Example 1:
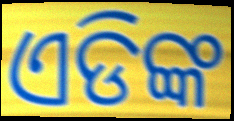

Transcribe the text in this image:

ଏଡିଙ୍କ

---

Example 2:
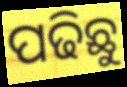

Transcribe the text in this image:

ପଢିଛୁ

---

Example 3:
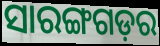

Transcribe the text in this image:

ସାରଙ୍ଗଗଡ଼ର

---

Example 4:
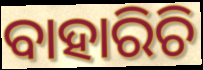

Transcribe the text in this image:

ବାହାରିଚି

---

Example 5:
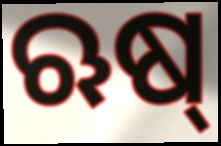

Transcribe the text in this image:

ଋଷ୍